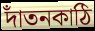
দাঁতনকাঠি